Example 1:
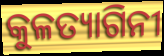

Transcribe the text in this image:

କୁଳତ୍ୟାଗିନୀ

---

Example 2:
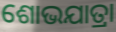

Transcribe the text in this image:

ଶୋଭଯାତ୍ରା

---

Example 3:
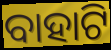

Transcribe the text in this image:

ବାହାଟି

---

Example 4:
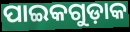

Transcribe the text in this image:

ପାଇକଗୁଡ଼ାକ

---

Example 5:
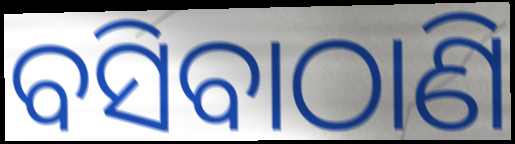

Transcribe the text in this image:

ବସିବାଠାଣି